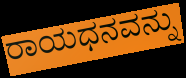
ರಾಯಧನವನ್ನು